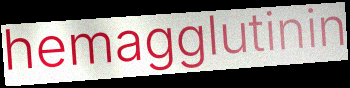
hemagglutinin